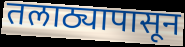
तलाठ्यापासून